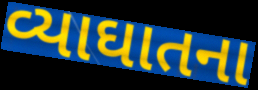
વ્યાઘાતના